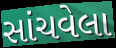
સાંચવેલા